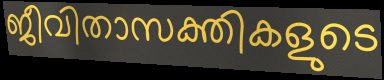
ജീവിതാസക്തികളുടെ